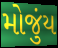
મોજુંય